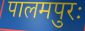
पालमपुरः